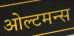
ओल्टमन्स